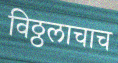
विठ्ठलाचाच